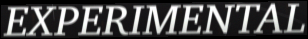
EXPERIMENTAL